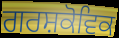
ਗਰਸ਼ਕੋਵਿਕ